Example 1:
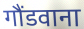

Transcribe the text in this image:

गौंडवाना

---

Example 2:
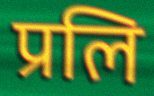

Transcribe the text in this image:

प्रलि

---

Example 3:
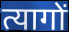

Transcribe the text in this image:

त्यागों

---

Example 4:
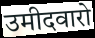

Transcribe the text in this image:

उमीदवारो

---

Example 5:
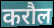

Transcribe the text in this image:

करौल